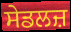
ਸੇਡਲਜ਼